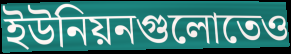
ইউনিয়নগুলোতেও